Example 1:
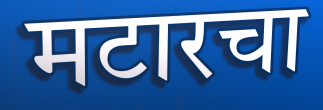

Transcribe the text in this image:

मटारचा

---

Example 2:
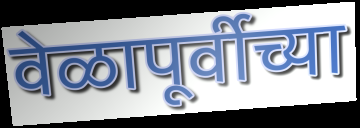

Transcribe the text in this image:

वेळापूर्वीच्या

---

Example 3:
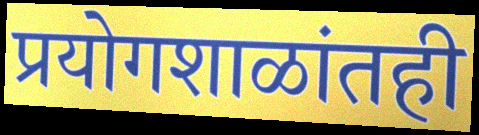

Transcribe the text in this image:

प्रयोगशाळांतही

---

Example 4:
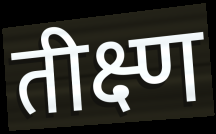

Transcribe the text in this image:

तीक्ष्ण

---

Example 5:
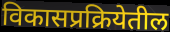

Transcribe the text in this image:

विकासप्रक्रियेतील